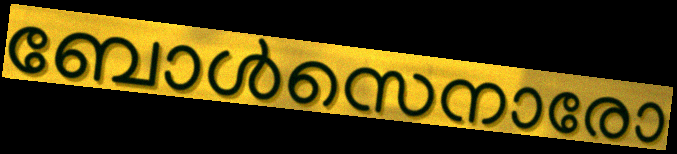
ബോൾസെനാരോ